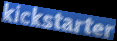
kickstarter